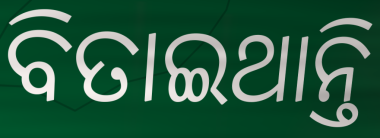
ବିତାଇଥାନ୍ତି